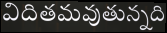
విదితమవుతున్నది